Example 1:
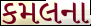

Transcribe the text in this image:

કમલના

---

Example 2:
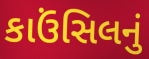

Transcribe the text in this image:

કાઉંસિલનું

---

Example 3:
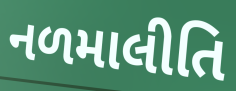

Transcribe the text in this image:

નળમાલીતિ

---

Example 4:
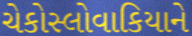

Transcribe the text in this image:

ચેકોસ્લોવાકિયાને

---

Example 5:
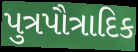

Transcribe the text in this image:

પુત્રપૌત્રાદિક